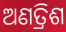
ଅଣତ୍ରିଶ